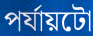
পৰ্যায়টো